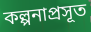
কল্পনাপ্ৰসূত